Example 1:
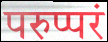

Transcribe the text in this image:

परुप्परं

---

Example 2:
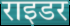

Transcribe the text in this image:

राइडर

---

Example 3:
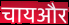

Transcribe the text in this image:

चायऔर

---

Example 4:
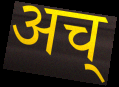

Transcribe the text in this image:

अच्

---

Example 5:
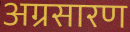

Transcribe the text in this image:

अग्रसारण